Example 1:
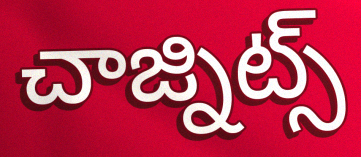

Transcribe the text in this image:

చాజ్నిట్స్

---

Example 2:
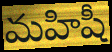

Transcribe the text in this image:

మహిషీ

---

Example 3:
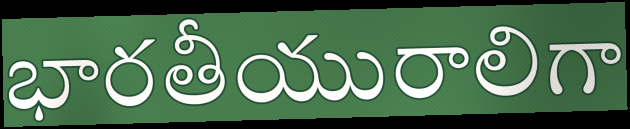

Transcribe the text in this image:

భారతీయురాలిగా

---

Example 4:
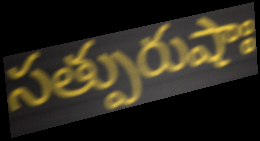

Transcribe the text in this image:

సత్పురుషాః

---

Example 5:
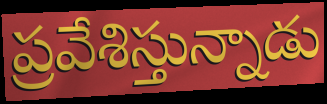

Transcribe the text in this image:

ప్రవేశిస్తున్నాడు